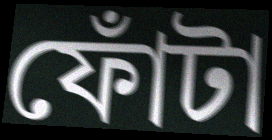
ফোঁটা